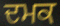
ਦਮਕ